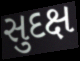
સુદક્ષ